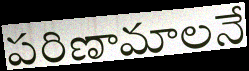
పరిణామాలనే